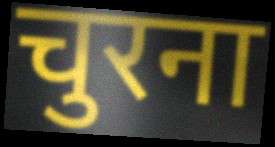
चुरना